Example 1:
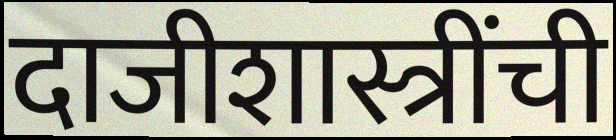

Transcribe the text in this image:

दाजीशास्त्रींची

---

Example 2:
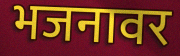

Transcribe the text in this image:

भजनावर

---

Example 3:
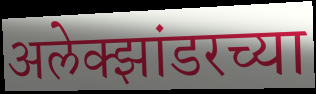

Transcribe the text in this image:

अलेक्झांडरच्या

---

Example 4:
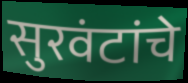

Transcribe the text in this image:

सुरवंटांचे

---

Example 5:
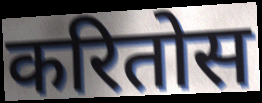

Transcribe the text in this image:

करितोस